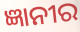
ଜ୍ଞାନୀର